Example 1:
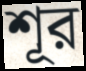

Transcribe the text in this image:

শূর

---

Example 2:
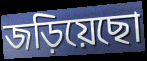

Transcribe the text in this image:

জড়িয়েছো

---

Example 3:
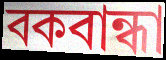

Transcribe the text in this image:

বকবান্ধা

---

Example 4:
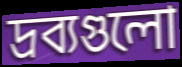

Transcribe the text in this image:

দ্রব্যগুলো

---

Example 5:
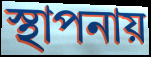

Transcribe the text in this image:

স্থাপনায়